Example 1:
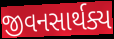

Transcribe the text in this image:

જીવનસાર્થક્ય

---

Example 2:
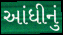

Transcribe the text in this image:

આંધીનું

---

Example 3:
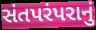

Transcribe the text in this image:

સંતપરંપરાનું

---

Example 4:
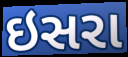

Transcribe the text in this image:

ઇસરા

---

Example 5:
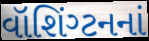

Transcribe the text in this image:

વૉશિંગ્ટનનાં